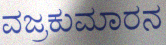
ವಜ್ರಕುಮಾರನ